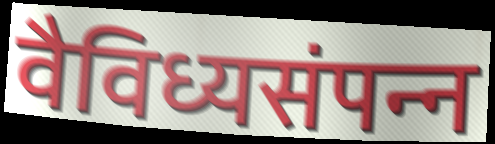
वैविध्यसंपन्न